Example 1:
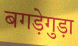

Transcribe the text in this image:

बगड़ेगुड़ा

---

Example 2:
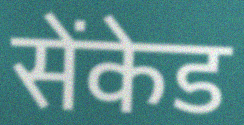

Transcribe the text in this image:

सेंकेड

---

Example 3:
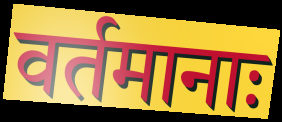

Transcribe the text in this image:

वर्तमानाः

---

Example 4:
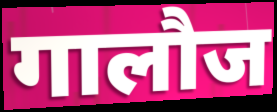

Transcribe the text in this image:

गालौज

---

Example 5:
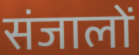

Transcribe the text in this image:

संजालों